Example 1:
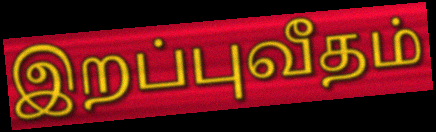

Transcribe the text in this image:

இறப்புவீதம்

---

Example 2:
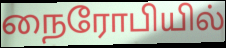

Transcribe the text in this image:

நைரோபியில்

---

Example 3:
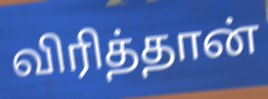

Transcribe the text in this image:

விரித்தான்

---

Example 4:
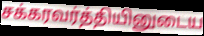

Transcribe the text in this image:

சக்கரவர்த்தியினுடைய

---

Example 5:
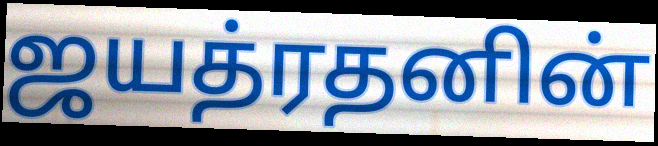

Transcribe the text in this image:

ஜயத்ரதனின்